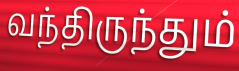
வந்திருந்தும்